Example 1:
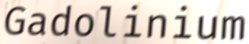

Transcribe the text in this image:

Gadolinium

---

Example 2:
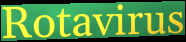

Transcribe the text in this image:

Rotavirus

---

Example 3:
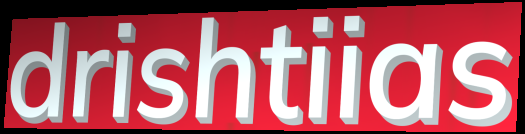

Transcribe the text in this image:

drishtiias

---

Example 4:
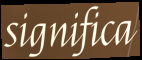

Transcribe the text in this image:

significa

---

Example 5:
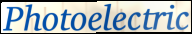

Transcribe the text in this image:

Photoelectric